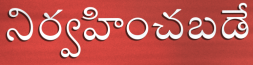
నిర్వహించబడే